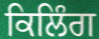
ਕਿਲਿੰਗ